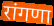
रांगणा